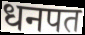
धनपत